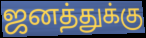
ஜனத்துக்கு